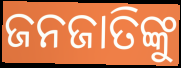
ଜନଜାତିଙ୍କୁ